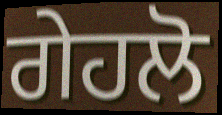
ਗੇਹਲੋ